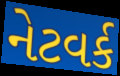
નેટવર્ક